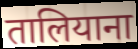
तालियाना